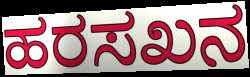
ಹರಸಖನ